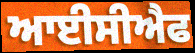
ਆਈਸੀਐਫ